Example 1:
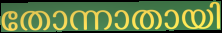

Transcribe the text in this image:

തോന്നാതായി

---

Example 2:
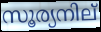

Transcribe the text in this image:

സൂര്യനില്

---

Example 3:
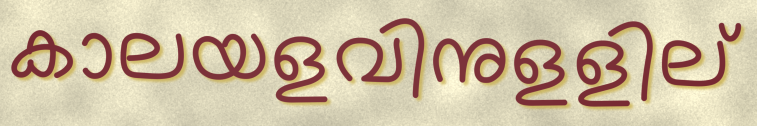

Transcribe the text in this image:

കാലയളവിനുളളില്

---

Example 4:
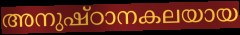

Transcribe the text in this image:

അനുഷ്ഠാനകലയായ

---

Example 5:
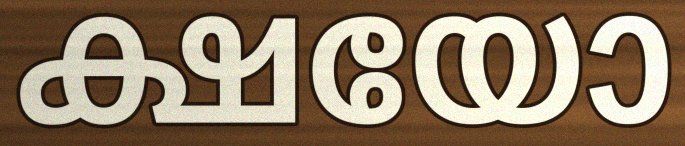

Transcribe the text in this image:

ക്ഷയോ